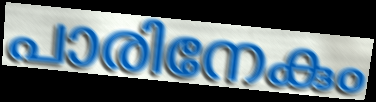
പാരിനേകും